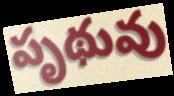
పృథువు